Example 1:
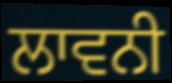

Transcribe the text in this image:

ਲਾਵਨੀ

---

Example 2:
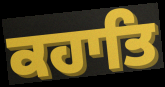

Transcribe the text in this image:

ਕਹਾਤਿ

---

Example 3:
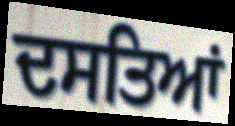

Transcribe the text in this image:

ਦਸਤਿਆਂ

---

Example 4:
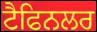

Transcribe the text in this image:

ਟੈਫਿਨਲਰ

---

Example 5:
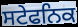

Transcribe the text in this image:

ਸਟੇਫਨਿਕ